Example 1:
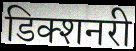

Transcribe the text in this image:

डिक्शनरी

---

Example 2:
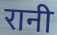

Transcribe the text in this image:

रानी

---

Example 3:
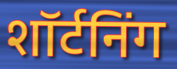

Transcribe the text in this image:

शॉर्टनिंग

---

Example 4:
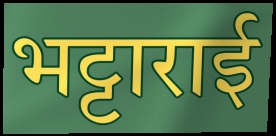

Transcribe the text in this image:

भट्टाराई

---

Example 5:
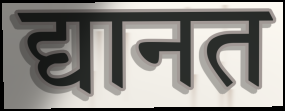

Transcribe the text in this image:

द्यानत